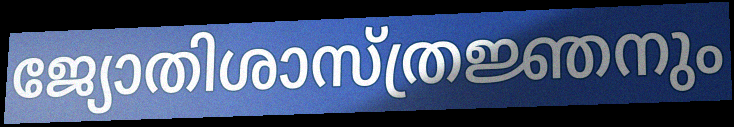
ജ്യോതിശാസ്ത്രജ്ഞനും